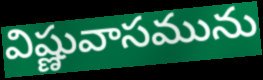
విష్ణువాసమును